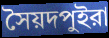
সৈয়দপুইরা